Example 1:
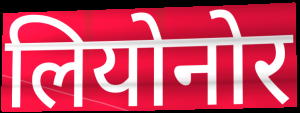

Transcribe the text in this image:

लियोनोर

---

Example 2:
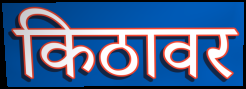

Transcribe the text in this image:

किठावर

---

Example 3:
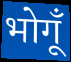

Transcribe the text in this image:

भोगूँ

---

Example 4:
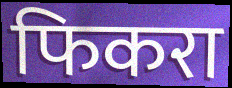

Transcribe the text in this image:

फिकरा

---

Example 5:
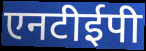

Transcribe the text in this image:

एनटीईपी